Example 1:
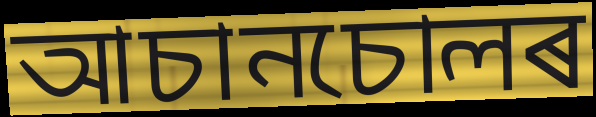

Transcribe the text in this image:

আচানচোলৰ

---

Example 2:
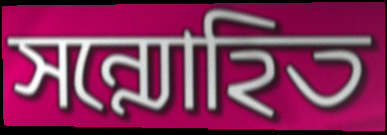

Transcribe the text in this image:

সন্মোহিত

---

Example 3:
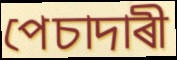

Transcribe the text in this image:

পেচাদাৰী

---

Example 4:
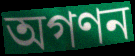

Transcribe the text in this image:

অগণন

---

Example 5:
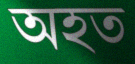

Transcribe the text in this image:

অহত